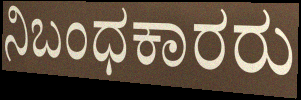
ನಿಬಂಧಕಾರರು